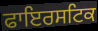
ਫਾਇਰਸਟਿਕ